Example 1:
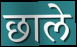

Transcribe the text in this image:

छाले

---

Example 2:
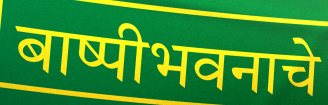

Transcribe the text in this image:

बाष्पीभवनाचे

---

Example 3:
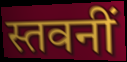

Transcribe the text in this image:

स्तवनीं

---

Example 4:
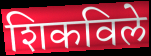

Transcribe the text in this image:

शिकविले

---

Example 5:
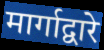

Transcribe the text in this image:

मार्गाद्वारे